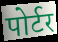
पोर्टर